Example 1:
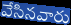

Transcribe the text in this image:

వేసినవారు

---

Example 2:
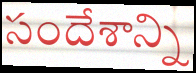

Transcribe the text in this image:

సందేశాన్ని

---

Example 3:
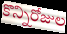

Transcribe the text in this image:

కొన్నిరోజుల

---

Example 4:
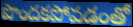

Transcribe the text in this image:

పొందకపోవడంతో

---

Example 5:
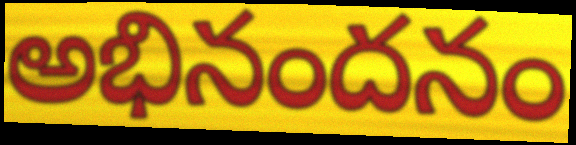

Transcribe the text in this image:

అభినందనం